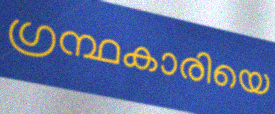
ഗ്രന്ഥകാരിയെ